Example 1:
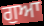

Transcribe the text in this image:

ਗੁਆ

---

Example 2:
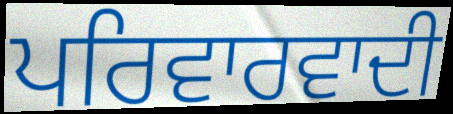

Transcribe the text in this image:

ਪਰਿਵਾਰਵਾਦੀ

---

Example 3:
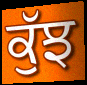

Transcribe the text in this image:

ਕੁੱਝ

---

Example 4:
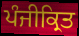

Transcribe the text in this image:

ਪੰਜੀਕ੍ਰਿਤ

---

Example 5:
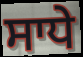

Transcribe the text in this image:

ਸਾਧੇ